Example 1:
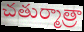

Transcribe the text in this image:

చతుర్మాత్రా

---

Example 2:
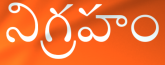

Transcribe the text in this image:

నిగ్రహం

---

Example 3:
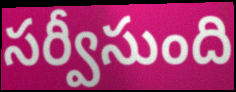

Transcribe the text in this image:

సర్వీసుంది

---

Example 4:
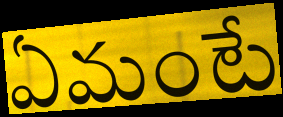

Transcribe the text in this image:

ఏమంటే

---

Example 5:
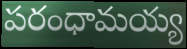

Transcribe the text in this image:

పరంధామయ్య